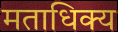
मताधिक्‍य